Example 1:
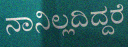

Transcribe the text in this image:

ನಾನಿಲ್ಲದಿದ್ದರೆ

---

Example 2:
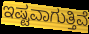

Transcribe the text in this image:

ಇಷ್ಟವಾಗುತ್ತಿವೆ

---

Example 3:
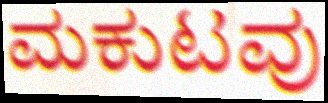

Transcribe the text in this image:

ಮಕುಟವು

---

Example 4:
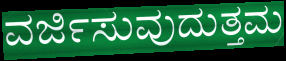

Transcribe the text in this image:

ವರ್ಜಿಸುವುದುತ್ತಮ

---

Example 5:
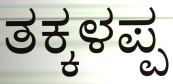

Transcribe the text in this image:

ತಕ್ಕಳಪ್ಪ